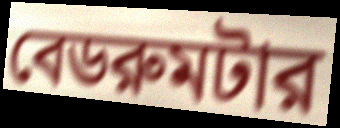
বেডরুমটার